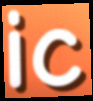
ic